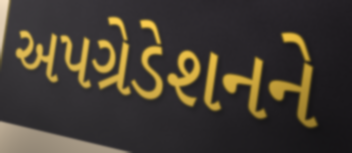
અપગ્રેડેશનને